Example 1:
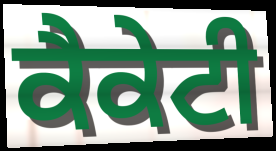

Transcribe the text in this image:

ਕੈਕੇਟੀ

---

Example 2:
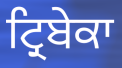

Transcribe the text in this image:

ਟ੍ਰਿਬੇਕਾ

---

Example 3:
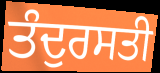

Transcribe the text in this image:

ਤੰਦੁਰਸਤੀ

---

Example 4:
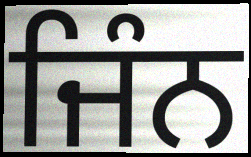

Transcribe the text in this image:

ਜਿੰਨ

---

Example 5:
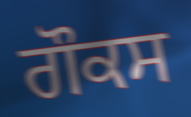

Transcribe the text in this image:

ਗੌਕਸ